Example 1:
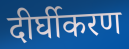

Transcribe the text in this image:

दीर्घीकरण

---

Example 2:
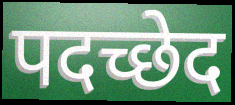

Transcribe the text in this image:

पदच्छेद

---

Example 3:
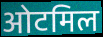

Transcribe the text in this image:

ओटमिल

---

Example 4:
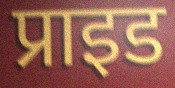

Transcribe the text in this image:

प्राइड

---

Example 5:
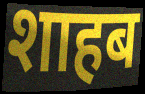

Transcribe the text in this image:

शाहब